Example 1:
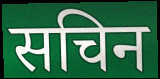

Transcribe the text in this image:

सचिन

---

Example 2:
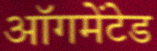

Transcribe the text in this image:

ऑगमेंटेड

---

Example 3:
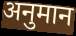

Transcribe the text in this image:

अनुमान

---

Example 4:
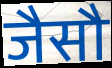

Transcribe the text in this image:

जैसौ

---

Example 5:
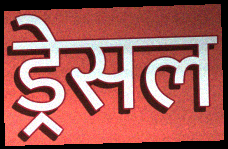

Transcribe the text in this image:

ड्रेसल